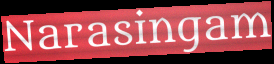
Narasingam